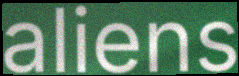
aliens